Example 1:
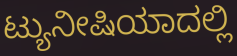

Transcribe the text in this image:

ಟ್ಯುನೀಷಿಯಾದಲ್ಲಿ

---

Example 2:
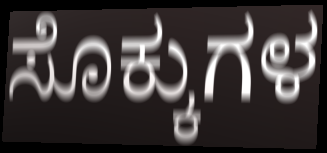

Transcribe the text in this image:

ಸೊಕ್ಕುಗಳ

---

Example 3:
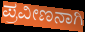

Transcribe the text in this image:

ಪ್ರವೀಣನಾಗಿ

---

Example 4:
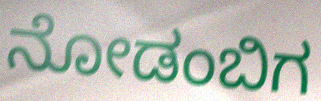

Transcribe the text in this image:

ನೋಡಂಬಿಗ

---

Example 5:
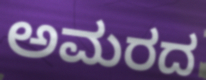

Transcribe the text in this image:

ಅಮರದ